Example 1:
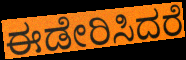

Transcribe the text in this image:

ಈಡೇರಿಸಿದರೆ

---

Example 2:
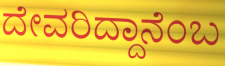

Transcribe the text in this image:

ದೇವರಿದ್ದಾನೆಂಬ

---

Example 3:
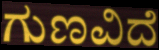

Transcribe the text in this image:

ಗುಣವಿದೆ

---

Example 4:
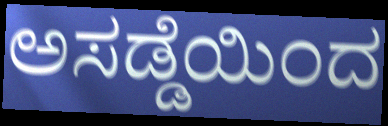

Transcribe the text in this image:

ಅಸಡ್ಡೆಯಿಂದ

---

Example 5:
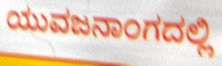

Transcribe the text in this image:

ಯುವಜನಾಂಗದಲ್ಲಿ